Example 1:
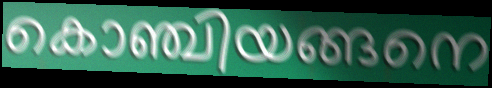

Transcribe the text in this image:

കൊഞ്ചിയങ്ങനെ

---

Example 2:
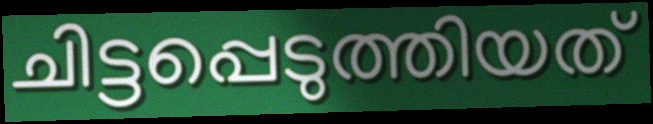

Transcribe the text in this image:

ചിട്ടപ്പെടുത്തിയത്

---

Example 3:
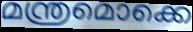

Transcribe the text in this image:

മന്ത്രമൊക്കെ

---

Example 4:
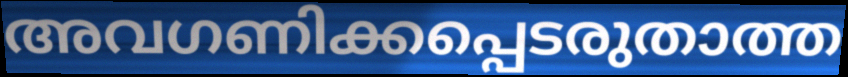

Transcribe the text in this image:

അവഗണിക്കപ്പെടരുതാത്ത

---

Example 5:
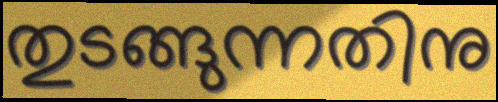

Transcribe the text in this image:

തുടങ്ങുന്നതിനു